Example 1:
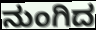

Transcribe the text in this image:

ನುಂಗಿದ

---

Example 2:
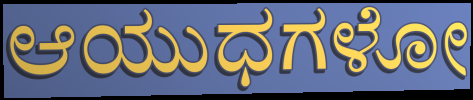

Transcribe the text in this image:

ಆಯುಧಗಳೋ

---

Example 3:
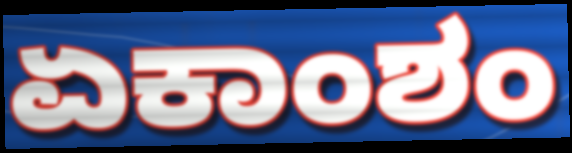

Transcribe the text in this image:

ಏಕಾಂಶಂ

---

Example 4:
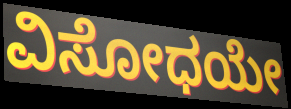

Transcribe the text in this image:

ವಿಸೋಧಯೇ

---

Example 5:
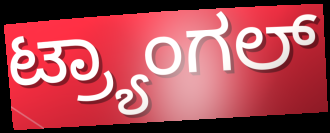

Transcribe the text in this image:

ಟ್ರ್ಯಾಂಗಲ್